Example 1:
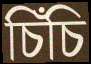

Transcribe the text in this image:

চিঁচি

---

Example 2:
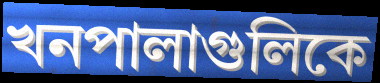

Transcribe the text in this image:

খনপালাগুলিকে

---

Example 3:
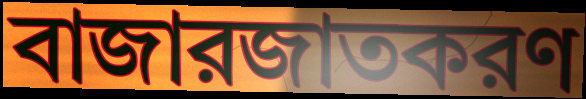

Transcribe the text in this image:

বাজারজাতকরণ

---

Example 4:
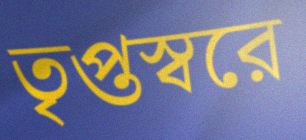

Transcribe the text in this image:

তৃপ্তস্বরে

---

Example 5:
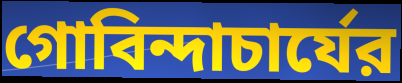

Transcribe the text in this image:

গোবিন্দাচার্যের